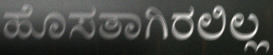
ಹೊಸತಾಗಿರಲಿಲ್ಲ